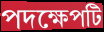
পদক্ষেপটি